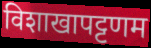
विशाखापट्टणम